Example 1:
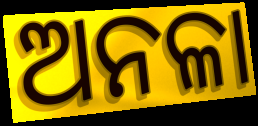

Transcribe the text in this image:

ଅନଳା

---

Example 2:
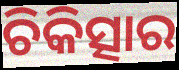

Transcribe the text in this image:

ଚିକିତ୍ସାର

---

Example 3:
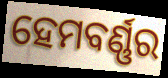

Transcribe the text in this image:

ହେମବର୍ଣ୍ଣର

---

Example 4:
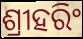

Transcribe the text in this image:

ଶ୍ରୀହରିଂ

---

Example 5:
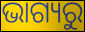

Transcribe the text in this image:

ଭାଗ୍ୟରୁ